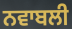
ਨਵਾਬਲੀ